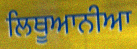
ਲਿਥੂਆਨੀਆ